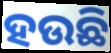
ହଉଛି